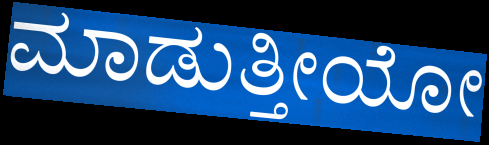
ಮಾಡುತ್ತೀಯೋ